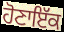
ਹੋਣਾਇੱਕ